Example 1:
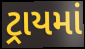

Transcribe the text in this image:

ટ્રાયમાં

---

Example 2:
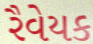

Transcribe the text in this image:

રૈવેયક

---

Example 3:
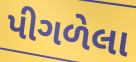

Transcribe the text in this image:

પીગળેલા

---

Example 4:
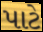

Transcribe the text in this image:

પાટે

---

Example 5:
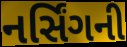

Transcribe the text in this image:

નર્સિંગની